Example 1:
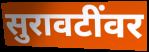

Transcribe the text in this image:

सुरावटींवर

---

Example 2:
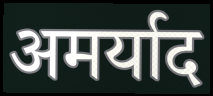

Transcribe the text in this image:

अमर्याद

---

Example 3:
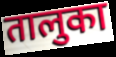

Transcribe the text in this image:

तालुका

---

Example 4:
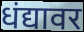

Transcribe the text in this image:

धंद्यावर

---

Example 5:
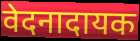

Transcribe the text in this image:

वेदनादायक